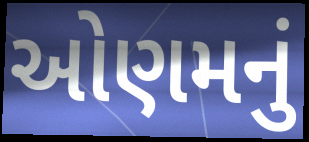
ઓણમનું